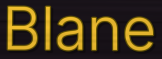
Blane